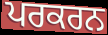
ਪਰਕਰਨ